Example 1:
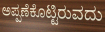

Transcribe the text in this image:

ಅಪ್ಪಣೆಕೊಟ್ಟಿರುವದು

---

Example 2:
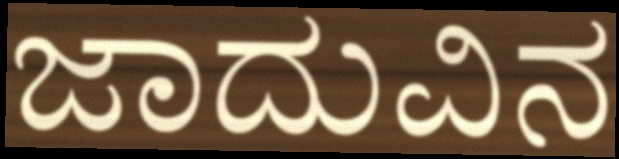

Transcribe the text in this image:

ಜಾದುವಿನ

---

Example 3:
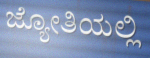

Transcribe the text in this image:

ಜ್ಯೋತಿಯಲ್ಲಿ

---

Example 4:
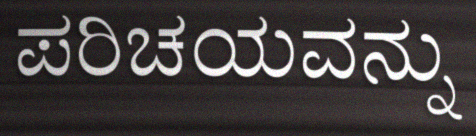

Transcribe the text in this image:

ಪರಿಚಯವನ್ನು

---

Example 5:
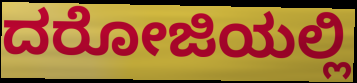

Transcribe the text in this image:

ದರೋಜಿಯಲ್ಲಿ